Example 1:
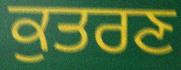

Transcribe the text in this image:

ਕੁਤਰਣ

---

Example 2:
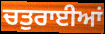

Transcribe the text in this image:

ਚਤੁਰਾਈਆਂ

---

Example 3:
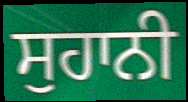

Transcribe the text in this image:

ਸੁਹਾਨੀ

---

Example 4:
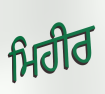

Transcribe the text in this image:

ਮਿਹੀਰ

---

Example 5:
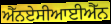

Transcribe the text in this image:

ਐੱਨਏਸੀਆਈਐੱਨ